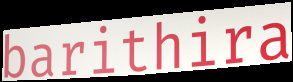
barithira